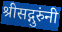
श्रीसद्गुरुंनी